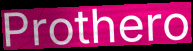
Prothero